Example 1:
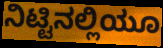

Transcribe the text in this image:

ನಿಟ್ಟಿನಲ್ಲಿಯೂ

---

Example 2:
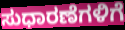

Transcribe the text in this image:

ಸುಧಾರಣೆಗಳಿಗೆ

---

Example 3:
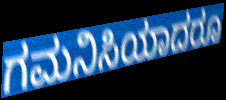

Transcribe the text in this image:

ಗಮನಿಸಿಯಾದರೂ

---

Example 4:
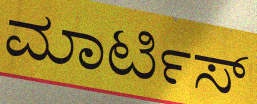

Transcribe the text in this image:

ಮಾರ್ಟಿಸ್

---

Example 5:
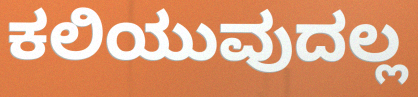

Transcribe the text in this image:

ಕಲಿಯುವುದಲ್ಲ